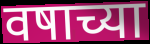
वषाच्या